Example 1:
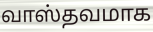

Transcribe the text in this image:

வாஸ்தவமாக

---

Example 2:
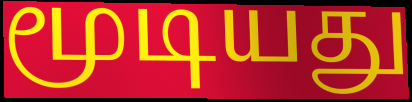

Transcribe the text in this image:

மூடியது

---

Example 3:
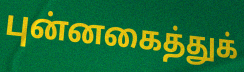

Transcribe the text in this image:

புன்னகைத்துக்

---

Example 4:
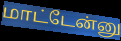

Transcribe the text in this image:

மாட்டேன்னு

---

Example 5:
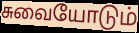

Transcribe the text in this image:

சுவையோடும்